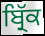
ਬ੍ਰਿੱਕ